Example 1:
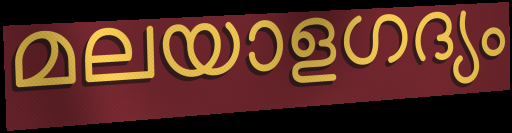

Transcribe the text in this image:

മലയാളഗദ്യം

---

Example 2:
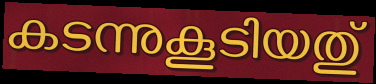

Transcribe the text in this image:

കടന്നുകൂടിയതു്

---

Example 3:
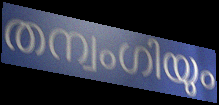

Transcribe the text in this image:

തന്വംഗിയും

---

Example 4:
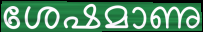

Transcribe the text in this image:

ശേഷമാണു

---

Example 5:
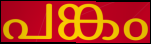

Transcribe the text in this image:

പങ്കം